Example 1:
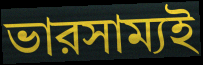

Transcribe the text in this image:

ভারসাম্যই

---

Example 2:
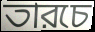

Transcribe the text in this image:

তারচে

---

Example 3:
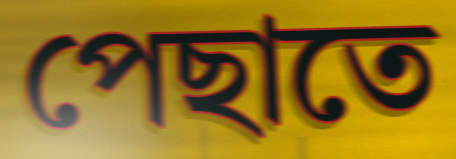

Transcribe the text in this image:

পেছাতে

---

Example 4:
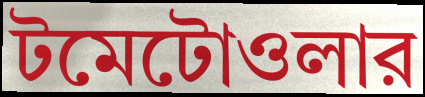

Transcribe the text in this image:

টমেটোওলার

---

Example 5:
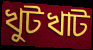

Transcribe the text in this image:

খুটখাট